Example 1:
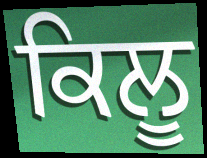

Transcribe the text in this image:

ਕਿਲੂ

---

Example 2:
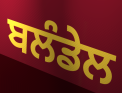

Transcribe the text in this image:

ਬਲੰਡੇਲ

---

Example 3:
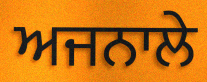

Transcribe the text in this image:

ਅਜਨਾਲੇ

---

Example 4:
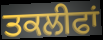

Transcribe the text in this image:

ਤਕਲੀਫਾਂ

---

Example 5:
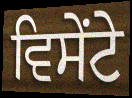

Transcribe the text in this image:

ਵਿਸੇਂਟੇ